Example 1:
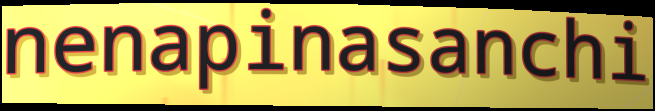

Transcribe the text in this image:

nenapinasanchi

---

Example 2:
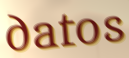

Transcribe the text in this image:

datos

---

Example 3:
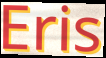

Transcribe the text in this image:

Eris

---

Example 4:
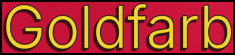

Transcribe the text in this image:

Goldfarb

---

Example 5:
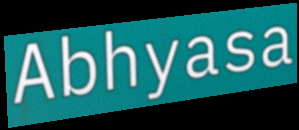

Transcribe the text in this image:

Abhyasa